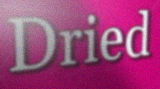
Dried